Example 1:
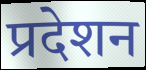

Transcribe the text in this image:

प्रदेशन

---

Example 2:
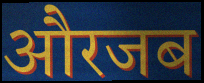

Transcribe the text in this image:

औरजब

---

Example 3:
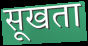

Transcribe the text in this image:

सूखता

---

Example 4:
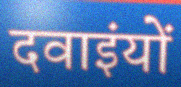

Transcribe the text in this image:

दवाइंयों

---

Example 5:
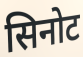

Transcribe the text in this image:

सिनोट